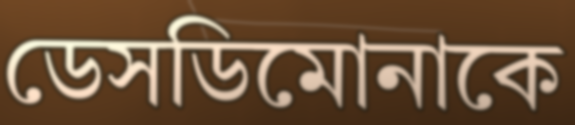
ডেসডিমোনাকে